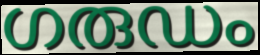
ഗരുഡം